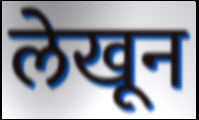
लेखून